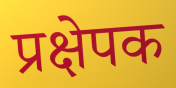
प्रक्षेपक